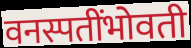
वनस्पतींभोवती